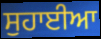
ਸੁਹਾਈਆ